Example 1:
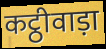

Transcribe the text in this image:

कट्ठीवाड़ा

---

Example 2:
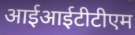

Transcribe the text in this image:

आईआईटीटीएम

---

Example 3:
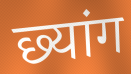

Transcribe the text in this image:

छ्यांग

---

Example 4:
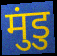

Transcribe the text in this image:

मुंडु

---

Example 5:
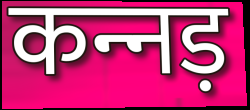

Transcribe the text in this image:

कन्‍नड़